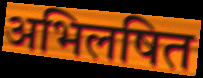
अभिलषित